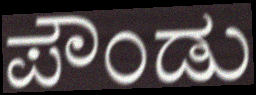
ಪೌಂಡು